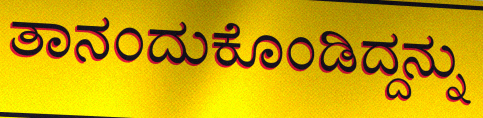
ತಾನಂದುಕೊಂಡಿದ್ದನ್ನು